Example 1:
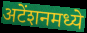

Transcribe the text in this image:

अटेंशनमध्ये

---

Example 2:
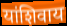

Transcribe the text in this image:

यांशिवाय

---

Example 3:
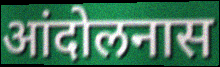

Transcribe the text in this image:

आंदोलनास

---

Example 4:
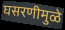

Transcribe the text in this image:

घसरणीमुळे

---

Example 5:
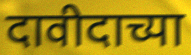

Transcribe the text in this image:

दावीदाच्या